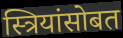
स्त्रियांसोबत